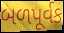
બળપૂર્વક